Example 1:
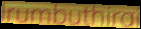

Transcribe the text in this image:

Irumbuthirai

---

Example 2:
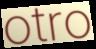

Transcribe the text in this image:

otro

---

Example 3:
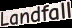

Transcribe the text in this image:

Landfall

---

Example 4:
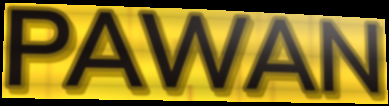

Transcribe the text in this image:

PAWAN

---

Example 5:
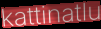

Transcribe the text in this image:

kattinatlu